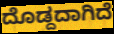
ದೊಡ್ದದಾಗಿದೆ